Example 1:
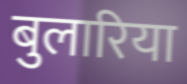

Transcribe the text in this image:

बुलारिया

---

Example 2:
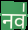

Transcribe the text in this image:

नव॑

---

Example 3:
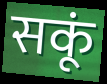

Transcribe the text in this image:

सकूं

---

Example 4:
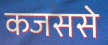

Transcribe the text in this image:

कजससे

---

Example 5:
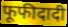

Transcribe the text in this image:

फूफीदादी